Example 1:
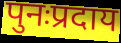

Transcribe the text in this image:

पुनःप्रदाय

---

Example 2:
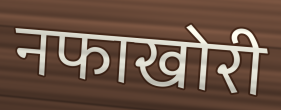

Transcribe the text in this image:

नफाखोरी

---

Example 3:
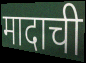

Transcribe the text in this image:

मादाची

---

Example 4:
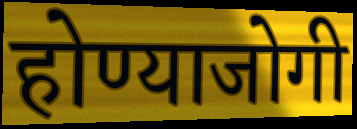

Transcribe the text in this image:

होण्याजोगी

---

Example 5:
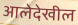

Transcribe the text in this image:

आलेदेखील